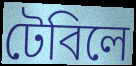
টেবিলে